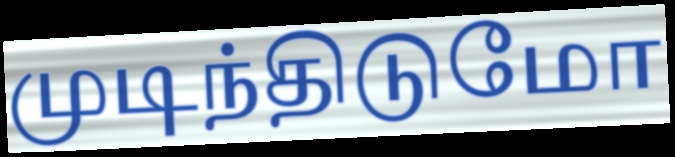
முடிந்திடுமோ